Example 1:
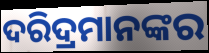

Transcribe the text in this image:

ଦରିଦ୍ରମାନଙ୍କର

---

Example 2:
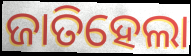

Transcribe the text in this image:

ଜାତିହେଲା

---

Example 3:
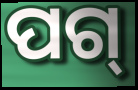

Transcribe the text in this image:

ପଗ୍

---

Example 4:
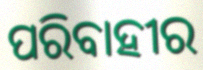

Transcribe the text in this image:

ପରିବାହୀର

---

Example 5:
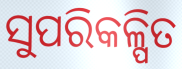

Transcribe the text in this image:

ସୁପରିକଳ୍ପିତ